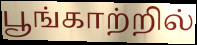
பூங்காற்றில்